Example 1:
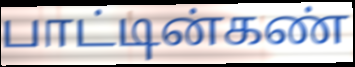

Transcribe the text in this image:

பாட்டின்கண்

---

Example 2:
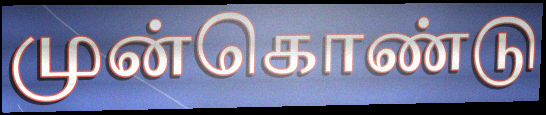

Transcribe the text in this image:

முன்கொண்டு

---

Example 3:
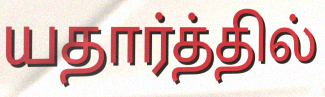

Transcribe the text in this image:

யதார்த்தில்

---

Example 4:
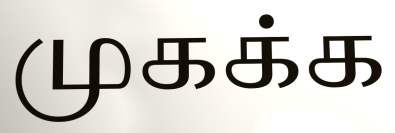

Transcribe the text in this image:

முகக்க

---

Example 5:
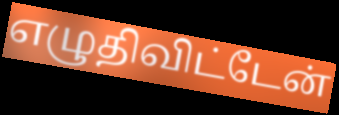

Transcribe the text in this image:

எழுதிவிட்டேன்